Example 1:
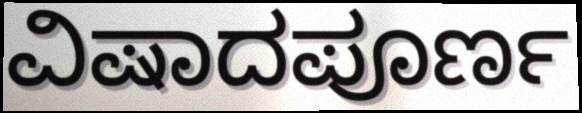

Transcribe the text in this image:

ವಿಷಾದಪೂರ್ಣ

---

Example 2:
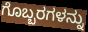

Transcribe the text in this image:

ಗೊಬ್ಬರಗಳನ್ನು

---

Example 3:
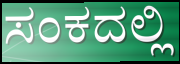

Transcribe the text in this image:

ಸಂಕದಲ್ಲಿ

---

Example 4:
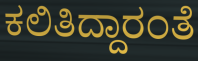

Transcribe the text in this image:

ಕಲಿತಿದ್ದಾರಂತೆ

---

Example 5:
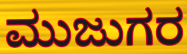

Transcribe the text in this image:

ಮುಜುಗರ